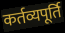
कर्तव्यपूर्ति